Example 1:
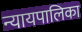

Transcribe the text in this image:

न्यायपालिका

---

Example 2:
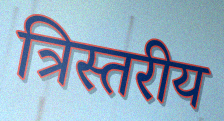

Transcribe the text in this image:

त्रिस्तरीय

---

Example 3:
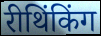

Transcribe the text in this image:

रीथिंकिंग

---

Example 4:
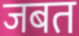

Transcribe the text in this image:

जबत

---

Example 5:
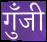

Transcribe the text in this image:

गुँजी